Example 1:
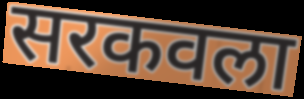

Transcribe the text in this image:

सरकवला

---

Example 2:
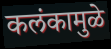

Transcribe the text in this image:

कलंकामुळे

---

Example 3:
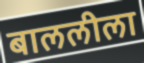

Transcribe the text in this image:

बाललीला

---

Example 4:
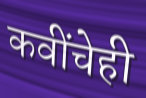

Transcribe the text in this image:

कवींचेही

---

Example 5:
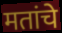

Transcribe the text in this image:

मतांचे